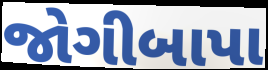
જોગીબાપા